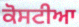
ਕੋਸਟੀਆ